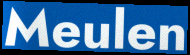
Meulen